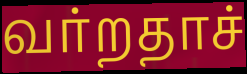
வர்றதாச்